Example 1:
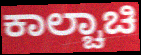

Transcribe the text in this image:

ಕಾಲ್ಚಾಚಿ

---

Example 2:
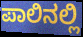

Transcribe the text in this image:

ಪಾಲಿನಲ್ಲಿ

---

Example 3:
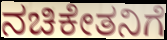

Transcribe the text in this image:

ನಚಿಕೇತನಿಗೆ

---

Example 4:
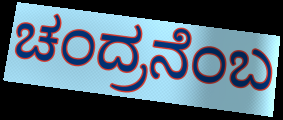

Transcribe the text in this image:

ಚಂದ್ರನೆಂಬ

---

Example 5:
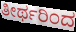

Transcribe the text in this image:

ತೀರ್ಥರಿಂದ